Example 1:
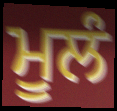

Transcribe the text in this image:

ਮੂਲੰ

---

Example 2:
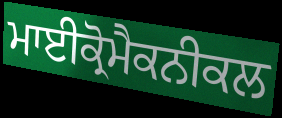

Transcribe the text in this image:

ਮਾਈਕ੍ਰੋਮੈਕਨੀਕਲ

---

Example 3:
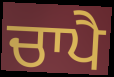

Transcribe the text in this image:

ਚਾਪੈ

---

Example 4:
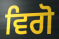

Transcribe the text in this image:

ਵਿਗੋ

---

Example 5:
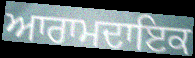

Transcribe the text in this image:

ਆਰਾਮਦਾਇਕ